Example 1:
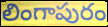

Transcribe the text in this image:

లింగాపురం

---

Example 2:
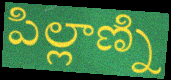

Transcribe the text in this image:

పిల్లాణ్ని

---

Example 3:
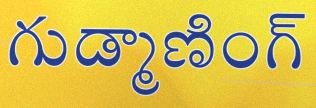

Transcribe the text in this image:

గుడ్మాణింగ్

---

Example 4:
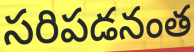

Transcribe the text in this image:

సరిపడనంత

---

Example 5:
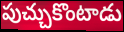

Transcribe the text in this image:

పుచ్చుకొంటాడు